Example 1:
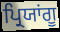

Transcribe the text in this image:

ਪ੍ਰਿਯਾਂਗੂ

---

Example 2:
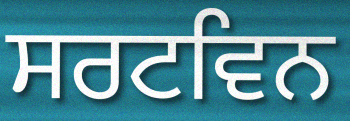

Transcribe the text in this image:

ਸਰਟਵਿਨ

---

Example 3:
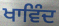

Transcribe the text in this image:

ਖਾਵਿੰਦ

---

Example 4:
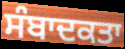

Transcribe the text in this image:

ਸੰਬਾਦਕਤਾ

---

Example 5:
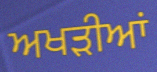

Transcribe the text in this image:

ਅਖੜੀਆਂ